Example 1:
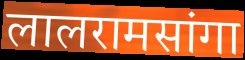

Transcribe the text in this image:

लालरामसांगा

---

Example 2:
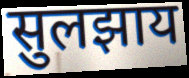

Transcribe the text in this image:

सुलझाय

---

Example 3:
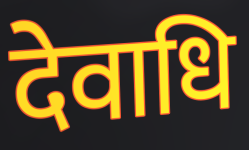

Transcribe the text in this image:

देवाधि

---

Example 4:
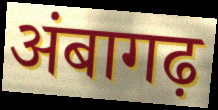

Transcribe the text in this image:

अंबागढ़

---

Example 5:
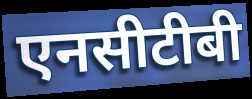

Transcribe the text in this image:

एनसीटीबी